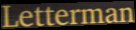
Letterman